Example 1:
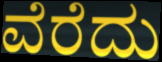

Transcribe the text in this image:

ವೆರೆದು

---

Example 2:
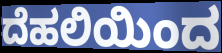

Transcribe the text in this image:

ದೆಹಲಿಯಿಂದ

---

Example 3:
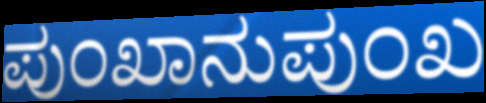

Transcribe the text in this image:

ಪುಂಖಾನುಪುಂಖ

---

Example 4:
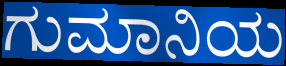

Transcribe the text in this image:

ಗುಮಾನಿಯ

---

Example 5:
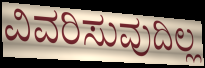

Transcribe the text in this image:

ವಿವರಿಸುವುದಿಲ್ಲ